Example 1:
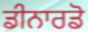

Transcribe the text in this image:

ਡੀਨਾਰਡੋ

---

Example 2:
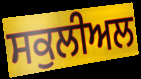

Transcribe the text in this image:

ਸਕੁਲੀਅਲ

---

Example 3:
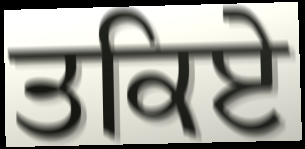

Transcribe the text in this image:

ਤਕਿਏ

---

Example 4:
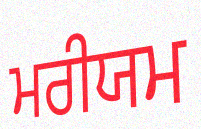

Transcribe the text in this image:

ਮਰੀਯਮ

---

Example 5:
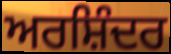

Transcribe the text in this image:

ਅਰਸ਼ਿੰਦਰ